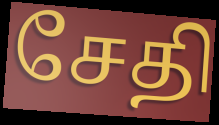
சேதி